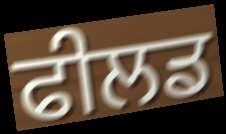
ਫੀਲਡ